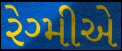
રેગ્મીએ